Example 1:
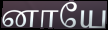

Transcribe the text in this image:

னாயே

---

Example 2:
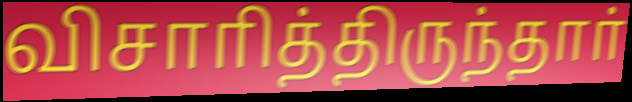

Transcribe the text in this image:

விசாரித்திருந்தார்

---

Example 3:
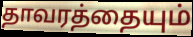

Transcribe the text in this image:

தாவரத்தையும்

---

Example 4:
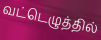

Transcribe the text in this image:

வட்டெழுத்தில்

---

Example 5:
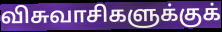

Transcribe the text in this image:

விசுவாசிகளுக்குக்